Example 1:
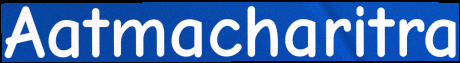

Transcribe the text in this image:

Aatmacharitra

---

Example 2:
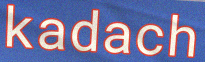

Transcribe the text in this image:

kadach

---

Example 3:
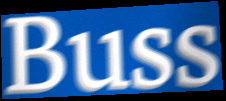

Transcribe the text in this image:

Buss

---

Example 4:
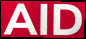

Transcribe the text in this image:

AID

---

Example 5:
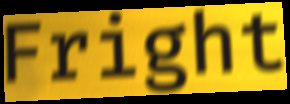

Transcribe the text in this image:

Fright